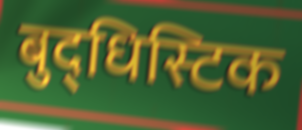
बुद्धिस्टिक